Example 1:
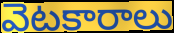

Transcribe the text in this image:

వెటకారాలు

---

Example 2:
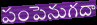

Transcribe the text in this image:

పంపెనుగదా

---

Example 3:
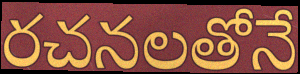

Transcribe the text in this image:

రచనలతోనే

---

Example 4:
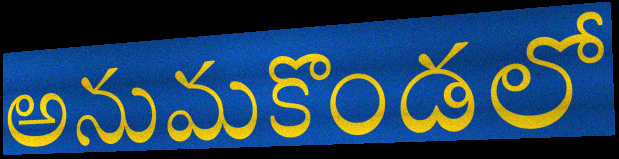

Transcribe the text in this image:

అనుమకొండలో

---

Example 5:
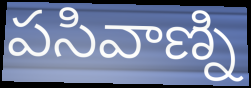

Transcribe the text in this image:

పసివాణ్ని